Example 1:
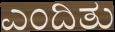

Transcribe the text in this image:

ಎಂದಿತು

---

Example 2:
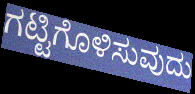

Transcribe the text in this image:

ಗಟ್ಟಿಗೊಳಿಸುವುದು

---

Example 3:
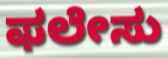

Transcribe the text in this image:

ಫಲೇಸು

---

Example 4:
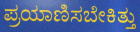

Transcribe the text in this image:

ಪ್ರಯಾಣಿಸಬೇಕಿತ್ತು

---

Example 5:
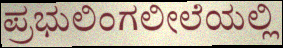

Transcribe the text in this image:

ಪ್ರಭುಲಿಂಗಲೀಲೆಯಲ್ಲಿ